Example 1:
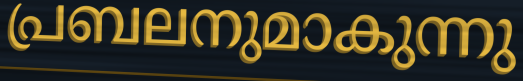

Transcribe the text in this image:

പ്രബലനുമാകുന്നു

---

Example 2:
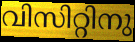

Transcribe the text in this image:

വിസിറ്റിനു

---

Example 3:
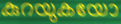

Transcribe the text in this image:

കുറയുകയോ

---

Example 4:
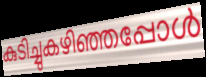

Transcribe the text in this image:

കുടിച്ചുകഴിഞ്ഞപ്പോൾ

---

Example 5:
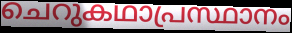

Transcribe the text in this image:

ചെറുകഥാപ്രസ്ഥാനം